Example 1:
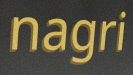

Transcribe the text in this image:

nagri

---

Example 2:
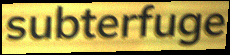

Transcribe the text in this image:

subterfuge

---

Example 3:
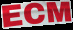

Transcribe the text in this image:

ECM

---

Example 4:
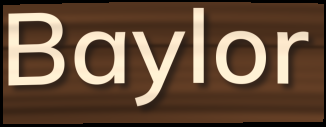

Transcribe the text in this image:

Baylor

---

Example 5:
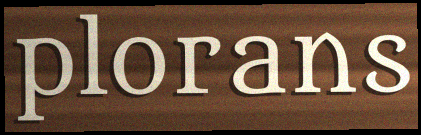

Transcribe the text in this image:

plorans